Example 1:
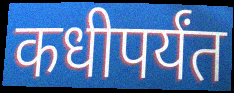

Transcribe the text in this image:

कधीपर्यंत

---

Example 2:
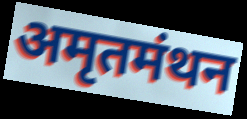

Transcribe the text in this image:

अमृतमंथन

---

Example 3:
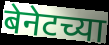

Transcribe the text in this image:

बेनेटच्या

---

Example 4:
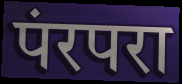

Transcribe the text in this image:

पंरपरा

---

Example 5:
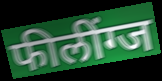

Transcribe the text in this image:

फीलींग्ज